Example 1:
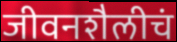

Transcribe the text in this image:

जीवनशैलीचं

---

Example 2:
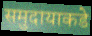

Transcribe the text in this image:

समुदायाकडे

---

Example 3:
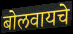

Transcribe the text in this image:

बोलवायचे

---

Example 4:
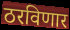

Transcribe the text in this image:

ठरविणार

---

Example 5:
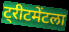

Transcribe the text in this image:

ट्रीटमेंटला